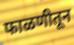
फाळणीतून